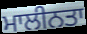
ਮਾਲੀਨਤਾ